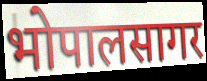
भोपालसागर